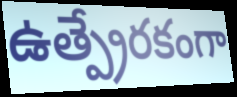
ఉత్ప్రేరకంగా